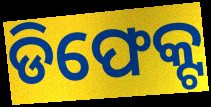
ଡିଫେକ୍ଟ